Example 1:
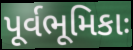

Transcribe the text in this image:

પૂર્વભૂમિકાઃ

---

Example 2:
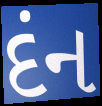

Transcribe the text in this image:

દંન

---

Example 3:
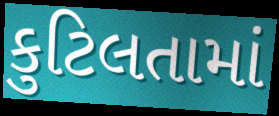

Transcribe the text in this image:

કુટિલતામાં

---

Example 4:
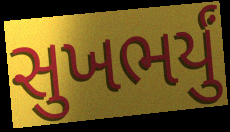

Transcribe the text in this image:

સુખભર્યું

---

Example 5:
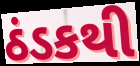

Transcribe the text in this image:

ઠંડકથી